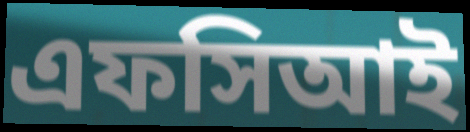
এফসিআই